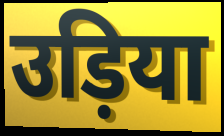
उड़िया